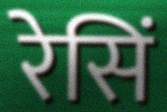
रेसिं